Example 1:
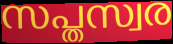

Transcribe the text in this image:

സപ്തസ്വര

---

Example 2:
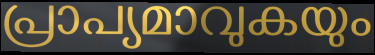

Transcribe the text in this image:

പ്രാപ്യമാവുകയും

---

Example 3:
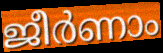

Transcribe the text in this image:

ജീർണാം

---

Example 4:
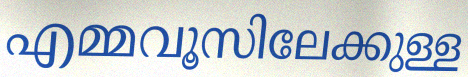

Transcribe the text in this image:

എമ്മവൂസിലേക്കുള്ള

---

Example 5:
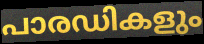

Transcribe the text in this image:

പാരഡികളും